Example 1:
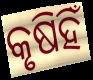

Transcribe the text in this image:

କୃଷିହିଁ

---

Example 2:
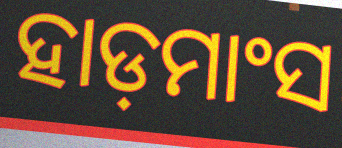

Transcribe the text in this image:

ହାଡ଼ମାଂସ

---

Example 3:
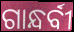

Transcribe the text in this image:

ଗାନ୍ଧର୍ବୀ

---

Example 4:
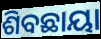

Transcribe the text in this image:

ଶିବଛାୟା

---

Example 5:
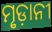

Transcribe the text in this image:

ମୃଡ଼ାନୀ